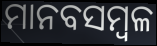
ମାନବସମ୍ବଳ